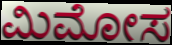
ಮಿಮೋಸ